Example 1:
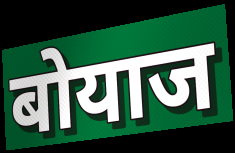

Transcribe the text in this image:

बोयाज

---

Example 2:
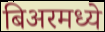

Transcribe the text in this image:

बिअरमध्ये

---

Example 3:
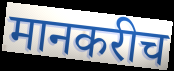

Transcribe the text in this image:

मानकरीच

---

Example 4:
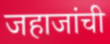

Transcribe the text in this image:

जहाजांची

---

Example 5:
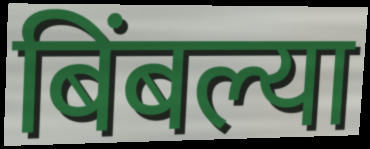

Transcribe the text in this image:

बिंबल्या